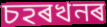
চহৰখনৰ